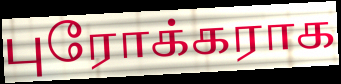
புரோக்கராக